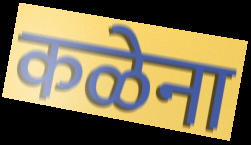
कळेना